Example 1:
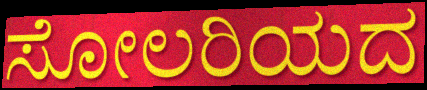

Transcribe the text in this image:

ಸೋಲರಿಯದ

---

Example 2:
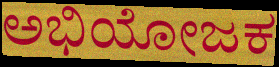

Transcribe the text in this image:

ಅಭಿಯೋಜಕ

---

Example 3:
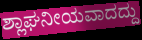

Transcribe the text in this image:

ಶ್ಲಾಘನೀಯವಾದದ್ದು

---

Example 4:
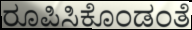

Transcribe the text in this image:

ರೂಪಿಸಿಕೊಂಡಂತೆ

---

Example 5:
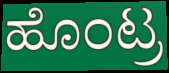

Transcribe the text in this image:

ಹೊಂಟ್ರ